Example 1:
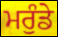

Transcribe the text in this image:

ਮਰੁੰਡੇ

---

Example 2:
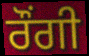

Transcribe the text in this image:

ਰੌਂਗੀ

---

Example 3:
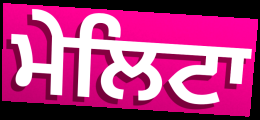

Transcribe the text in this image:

ਮੇਲਿਟਾ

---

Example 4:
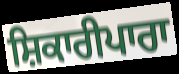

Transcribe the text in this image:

ਸ਼ਿਕਾਰੀਪਾਰਾ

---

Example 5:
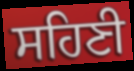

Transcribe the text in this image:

ਸਹਿਣੀ